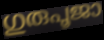
ഗുരുപൂജാ